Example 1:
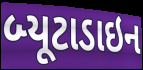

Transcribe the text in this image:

બ્યૂટાડાઇન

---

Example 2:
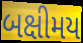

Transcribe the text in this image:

બક્ષીમય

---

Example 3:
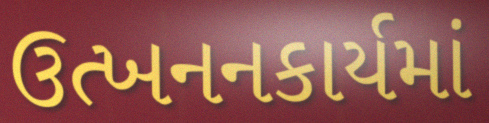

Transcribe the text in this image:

ઉત્ખનનકાર્યમાં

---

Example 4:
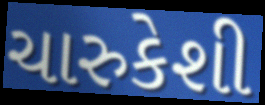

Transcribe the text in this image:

ચારુકેશી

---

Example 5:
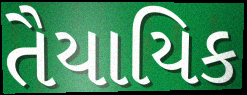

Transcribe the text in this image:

તૈયાયિક